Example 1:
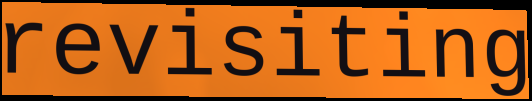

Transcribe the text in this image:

revisiting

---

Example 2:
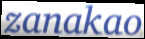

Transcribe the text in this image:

zanakao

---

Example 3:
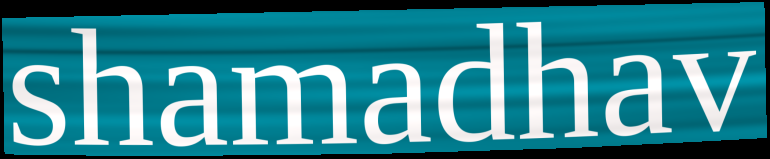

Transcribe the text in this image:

shamadhav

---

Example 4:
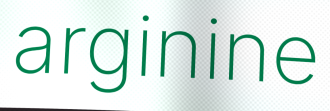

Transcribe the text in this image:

arginine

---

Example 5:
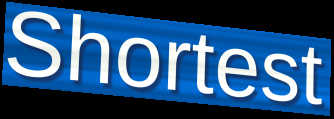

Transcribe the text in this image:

Shortest